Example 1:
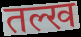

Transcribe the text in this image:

तल्‍ख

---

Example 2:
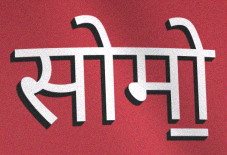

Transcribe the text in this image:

सोमो॒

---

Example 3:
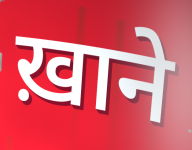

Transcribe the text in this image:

ख़ाने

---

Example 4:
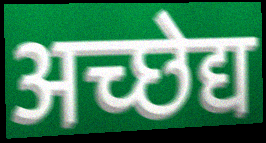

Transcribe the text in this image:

अच्छेद्य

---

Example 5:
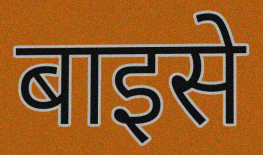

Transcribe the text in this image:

बाइसे